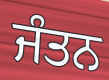
ਜੰਤਨ